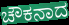
ಚೌಕನಾದ